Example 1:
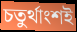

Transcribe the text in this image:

চতুর্থাংশই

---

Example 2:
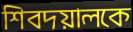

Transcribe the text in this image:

শিবদয়ালকে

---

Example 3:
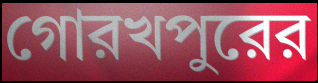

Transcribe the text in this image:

গোরখপুরের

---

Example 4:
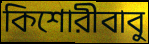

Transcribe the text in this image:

কিশোরীবাবু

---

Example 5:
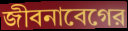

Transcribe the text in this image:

জীবনাবেগের